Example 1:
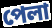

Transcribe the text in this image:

পেলা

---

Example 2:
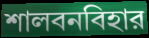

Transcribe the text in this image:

শালবনবিহার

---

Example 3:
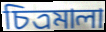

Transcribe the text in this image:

চিত্রমালা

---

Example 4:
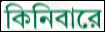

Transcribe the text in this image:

কিনিবারে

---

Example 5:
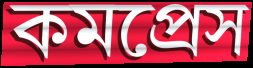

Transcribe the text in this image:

কমপ্রেস